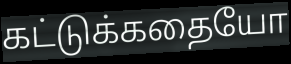
கட்டுக்கதையோ